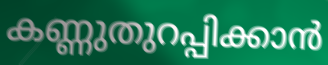
കണ്ണുതുറപ്പിക്കാൻ